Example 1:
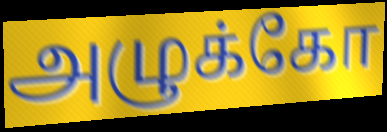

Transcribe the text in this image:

அழுக்கோ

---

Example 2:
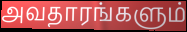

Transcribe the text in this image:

அவதாரங்களும்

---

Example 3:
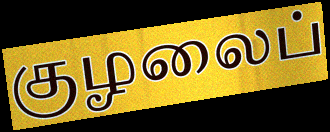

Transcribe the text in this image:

குழலைப்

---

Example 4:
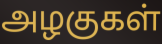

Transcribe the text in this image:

அழகுகள்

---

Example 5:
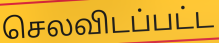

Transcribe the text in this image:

செலவிடப்பட்ட